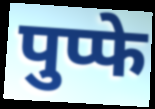
पुप्फे